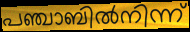
പഞ്ചാബിൽനിന്ന്